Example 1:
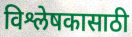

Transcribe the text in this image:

विश्लेषकासाठी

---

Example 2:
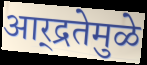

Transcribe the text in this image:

आर्द्रतेमुळे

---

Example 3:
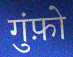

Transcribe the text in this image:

गुंफ़ो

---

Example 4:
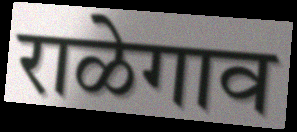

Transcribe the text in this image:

राळेगाव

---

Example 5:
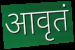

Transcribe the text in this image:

आवृतं